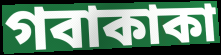
গবাকাকা